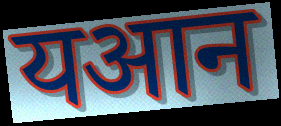
यआन